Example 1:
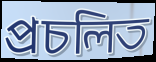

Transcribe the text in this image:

প্ৰচলিত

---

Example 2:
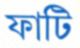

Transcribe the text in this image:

ফাটি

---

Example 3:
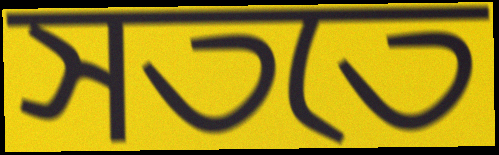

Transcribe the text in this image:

সততে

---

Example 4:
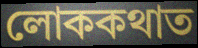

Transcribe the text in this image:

লোককথাত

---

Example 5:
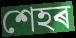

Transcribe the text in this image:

শেহৰ